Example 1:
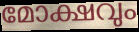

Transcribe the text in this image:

മോക്ഷവും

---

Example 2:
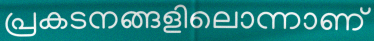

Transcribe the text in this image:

പ്രകടനങ്ങളിലൊന്നാണ്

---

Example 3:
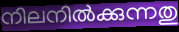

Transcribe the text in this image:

നിലനിൽക്കുന്നതു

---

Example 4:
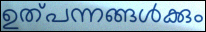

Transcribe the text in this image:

ഉത്പന്നങ്ങൾക്കും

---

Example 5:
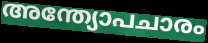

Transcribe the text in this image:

അന്ത്യോപചാരം